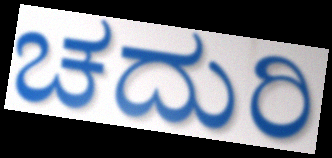
ಚದುರಿ